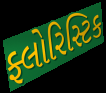
ફ્લોરિસ્ટિક